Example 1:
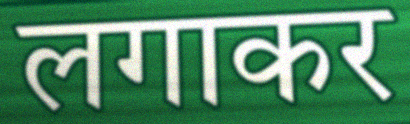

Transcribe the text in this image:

लगाकर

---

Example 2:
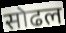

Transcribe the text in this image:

सोढल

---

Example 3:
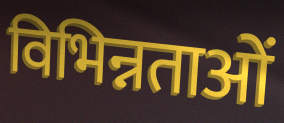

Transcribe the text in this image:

विभिन्नताओं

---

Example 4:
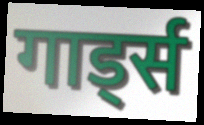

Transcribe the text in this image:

गार्ड्स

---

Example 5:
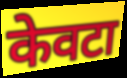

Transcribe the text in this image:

केवटा